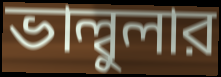
ভাল্বুলার